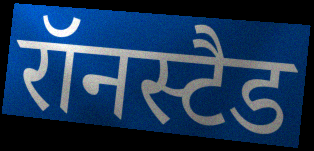
रॉनस्टैड